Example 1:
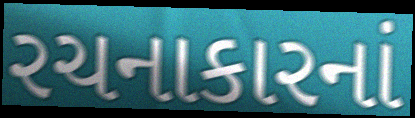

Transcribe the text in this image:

રચનાકારનાં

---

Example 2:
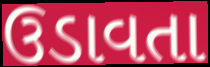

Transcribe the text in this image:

ઉડાવતા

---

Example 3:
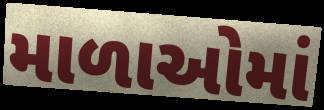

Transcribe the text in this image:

માળાઓમાં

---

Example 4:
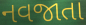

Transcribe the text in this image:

નવજાતા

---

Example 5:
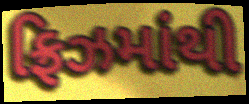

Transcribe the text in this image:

ફ્રિઝમાંથી